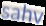
sahv